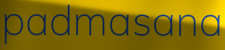
padmasana